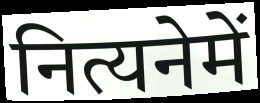
नित्यनेमें